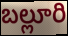
బల్లూరి